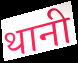
थानी